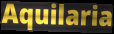
Aquilaria